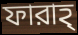
ফারাহ্